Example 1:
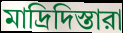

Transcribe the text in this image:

মাদ্রিদিস্তারা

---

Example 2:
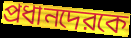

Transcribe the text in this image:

প্রধানদেরকে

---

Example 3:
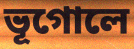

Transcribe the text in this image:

ভূগোলে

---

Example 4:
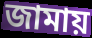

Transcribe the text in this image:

জামায়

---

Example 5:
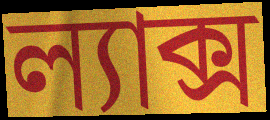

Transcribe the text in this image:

ল্যাক্স